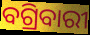
ବଗ୍ରିବାରୀ